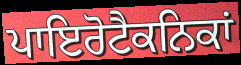
ਪਾਇਰੋਟੈਕਨਿਕਾਂ